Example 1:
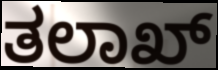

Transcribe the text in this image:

ತಲಾಖ್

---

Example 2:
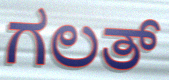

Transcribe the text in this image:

ಗಲತ್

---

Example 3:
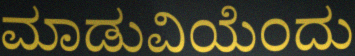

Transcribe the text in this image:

ಮಾಡುವಿಯೆಂದು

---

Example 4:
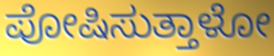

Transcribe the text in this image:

ಪೋಷಿಸುತ್ತಾಳೋ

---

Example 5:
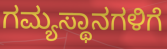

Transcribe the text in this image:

ಗಮ್ಯಸ್ಥಾನಗಳಿಗೆ